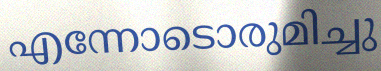
എന്നോടൊരുമിച്ചു